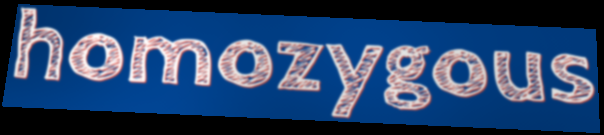
homozygous